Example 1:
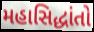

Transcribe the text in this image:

મહાસિદ્ધાંતો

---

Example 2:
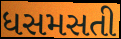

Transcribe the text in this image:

ધસમસતી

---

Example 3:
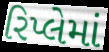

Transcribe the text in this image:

રિપ્લેમાં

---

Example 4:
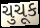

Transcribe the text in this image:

ચુચૂક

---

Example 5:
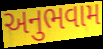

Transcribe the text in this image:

અનુભવામ